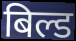
बिल्ड